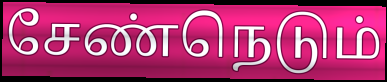
சேண்நெடும்